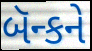
બૅન્કને